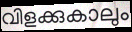
വിളക്കുകാലും